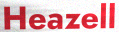
Heazell